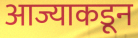
आज्याकडून